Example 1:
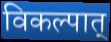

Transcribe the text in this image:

विकल्पात्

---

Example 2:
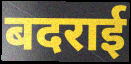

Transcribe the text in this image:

बदराई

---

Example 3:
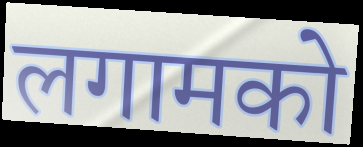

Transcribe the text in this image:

लगामको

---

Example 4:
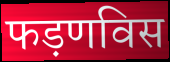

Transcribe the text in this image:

फड़णविस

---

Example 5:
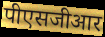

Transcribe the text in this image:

पीएसजीआर